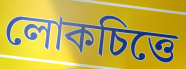
লোকচিত্তে